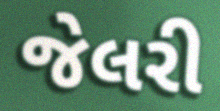
જેલરી